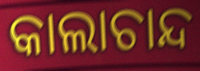
କାଲାଚାନ୍ଦ